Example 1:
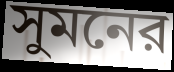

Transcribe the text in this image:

সুমনের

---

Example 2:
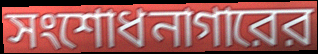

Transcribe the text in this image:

সংশোধনাগারের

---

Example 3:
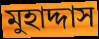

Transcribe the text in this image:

মুহাদ্দাস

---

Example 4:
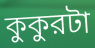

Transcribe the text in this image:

কুকুরটা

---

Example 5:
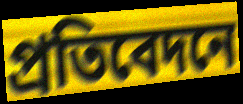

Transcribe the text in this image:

প্রতিবেদনে